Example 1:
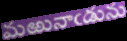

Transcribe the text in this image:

మఱునాఁడును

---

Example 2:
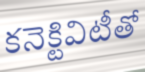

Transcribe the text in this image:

కనెక్టివిటీతో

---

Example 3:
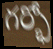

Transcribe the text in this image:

గర్భో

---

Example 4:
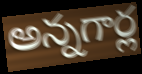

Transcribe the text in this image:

అన్నగార్ల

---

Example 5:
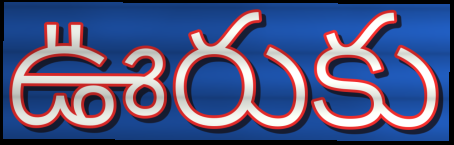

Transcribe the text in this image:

ఊరుకు